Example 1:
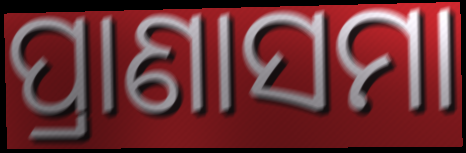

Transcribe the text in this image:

ପ୍ରାଣାସମା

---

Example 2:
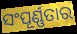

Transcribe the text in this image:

ସଂପୂର୍ଣ୍ଣତାର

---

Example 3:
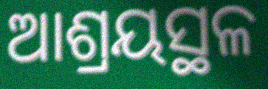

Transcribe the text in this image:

ଆଶ୍ରୟସ୍ଥଳ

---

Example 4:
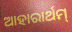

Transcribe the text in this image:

ଆହାରାର୍ଥମ୍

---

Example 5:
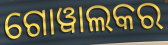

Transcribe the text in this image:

ଗୋୱାଲକର